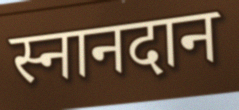
स्नानदान